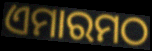
ଏମାରମଠ